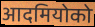
आदमियोको